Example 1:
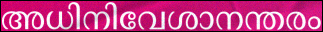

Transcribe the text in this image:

അധിനിവേശാനന്തരം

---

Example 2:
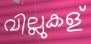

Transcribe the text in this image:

വില്ലുകള്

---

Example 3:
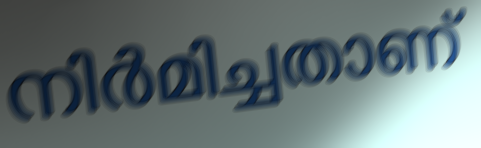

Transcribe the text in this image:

നിർമിച്ചതാണ്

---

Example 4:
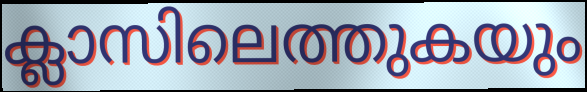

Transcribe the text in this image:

ക്ലാസിലെത്തുകയും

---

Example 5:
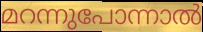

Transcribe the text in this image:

മറന്നുപോന്നാൽ